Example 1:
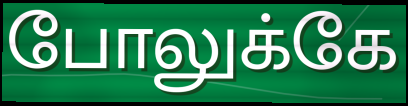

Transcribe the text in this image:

போலுக்கே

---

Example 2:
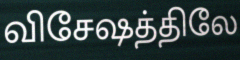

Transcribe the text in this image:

விசேஷத்திலே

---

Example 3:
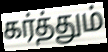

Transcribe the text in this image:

கர்த்தும்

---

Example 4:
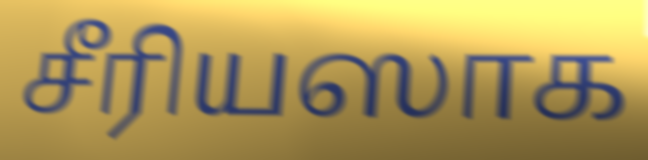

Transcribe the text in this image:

சீரியஸாக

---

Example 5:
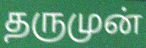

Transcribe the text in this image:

தருமுன்